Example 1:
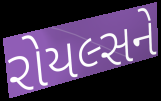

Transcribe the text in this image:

રોયલ્સને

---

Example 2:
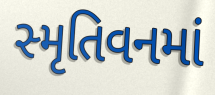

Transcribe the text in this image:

સ્મૃતિવનમાં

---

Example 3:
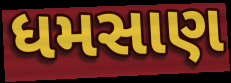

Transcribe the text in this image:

ધમસાણ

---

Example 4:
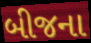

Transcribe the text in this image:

બીજના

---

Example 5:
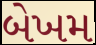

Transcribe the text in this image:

બેખમ